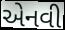
એનવી